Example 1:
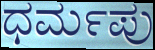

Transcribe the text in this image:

ಧರ್ಮಪು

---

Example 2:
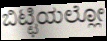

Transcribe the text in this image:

ಬಿಟ್ಟಿಯಲ್ಲೋ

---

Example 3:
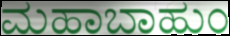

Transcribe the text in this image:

ಮಹಾಬಾಹುಂ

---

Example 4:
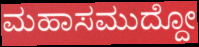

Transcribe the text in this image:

ಮಹಾಸಮುದ್ದೋ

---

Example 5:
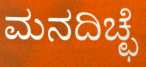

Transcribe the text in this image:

ಮನದಿಚ್ಛೆ